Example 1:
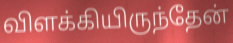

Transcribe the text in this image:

விளக்கியிருந்தேன்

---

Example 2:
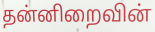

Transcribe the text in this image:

தன்னிறைவின்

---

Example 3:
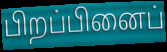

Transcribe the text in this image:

பிறப்பினைப்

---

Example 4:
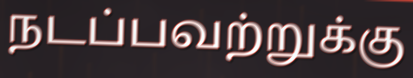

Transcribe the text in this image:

நடப்பவற்றுக்கு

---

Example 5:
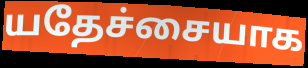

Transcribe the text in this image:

யதேச்சையாக